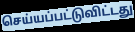
செய்யப்பட்டுவிட்டது